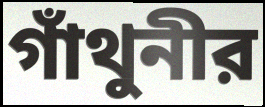
গাঁথুনীর